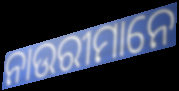
ନାଉରୀମାନେ